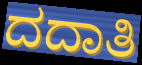
ದದಾತಿ